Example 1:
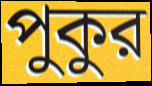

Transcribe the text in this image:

পুকুর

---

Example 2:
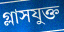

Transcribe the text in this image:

গ্লাসযুক্ত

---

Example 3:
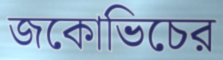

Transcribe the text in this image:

জকোভিচের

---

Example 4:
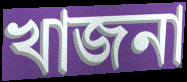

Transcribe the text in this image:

খাজনা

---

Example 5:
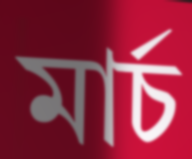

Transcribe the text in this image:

মার্চ